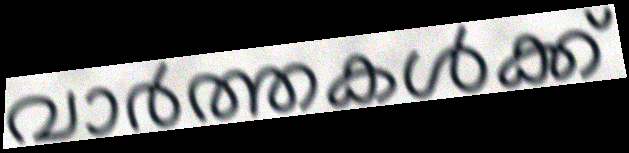
വാർത്തകൾക്ക്